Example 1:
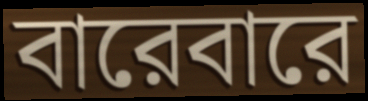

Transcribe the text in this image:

বারেবারে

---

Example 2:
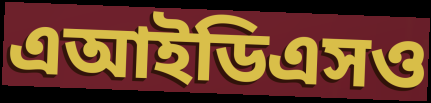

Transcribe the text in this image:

এআইডিএসও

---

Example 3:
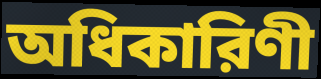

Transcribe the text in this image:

অধিকারিণী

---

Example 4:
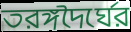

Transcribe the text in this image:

তরঙ্গদৈর্ঘের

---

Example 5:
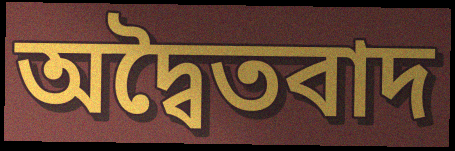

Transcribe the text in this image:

অদ্বৈতবাদ